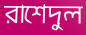
রাশেদুল